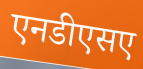
एनडीएसए